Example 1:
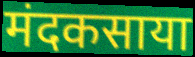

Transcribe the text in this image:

मंदकसाया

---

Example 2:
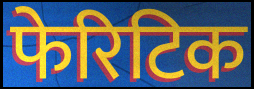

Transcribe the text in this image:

फेरिटिक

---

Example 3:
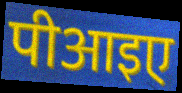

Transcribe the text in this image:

पीआइए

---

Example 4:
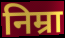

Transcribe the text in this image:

निम्रा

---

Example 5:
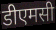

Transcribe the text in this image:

डीएमसी